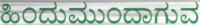
ಹಿಂದುಮುಂದಾಗುವ